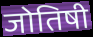
जोतिषी